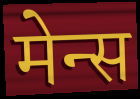
मेन्स